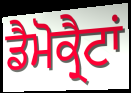
ਡੈਮੋਕ੍ਰੈਟਾਂ